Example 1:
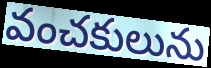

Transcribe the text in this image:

వంచకులును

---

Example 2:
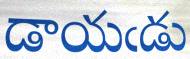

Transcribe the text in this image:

డాయఁడు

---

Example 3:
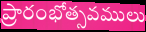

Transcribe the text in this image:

ప్రారంభోత్సవములు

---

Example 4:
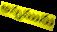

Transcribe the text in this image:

అన్నమును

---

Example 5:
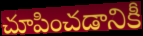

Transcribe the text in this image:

చూపించడానికీ